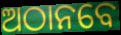
ଅଠାନବେ